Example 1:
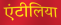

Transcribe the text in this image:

एंटीलिया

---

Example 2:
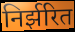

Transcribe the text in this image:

निर्झरित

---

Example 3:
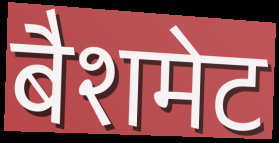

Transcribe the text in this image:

बैशमेट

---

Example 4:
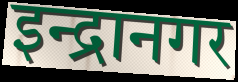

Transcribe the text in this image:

इन्द्रानगर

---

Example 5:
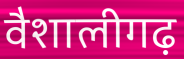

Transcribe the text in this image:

वैशालीगढ़